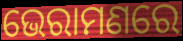
ଭେରାମଣରେ